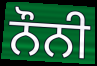
ਨੌਨੀ